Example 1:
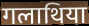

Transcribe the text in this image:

गलाथिया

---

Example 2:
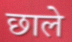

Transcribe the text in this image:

छाले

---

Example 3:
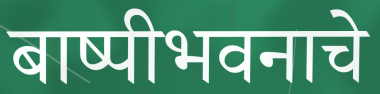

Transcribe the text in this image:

बाष्पीभवनाचे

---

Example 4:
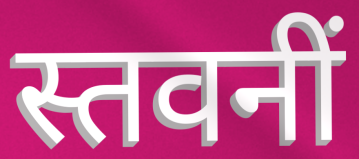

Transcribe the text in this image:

स्तवनीं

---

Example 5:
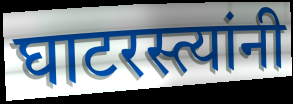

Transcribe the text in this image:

घाटरस्त्यांनी